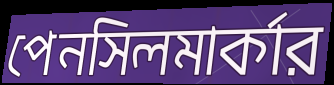
পেনসিলমার্কার